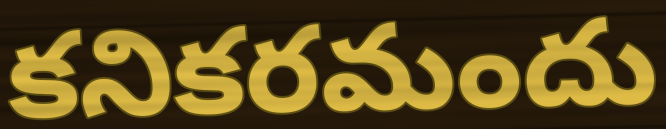
కనికరమందు